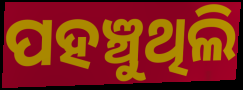
ପହଞ୍ଚୁଥିଲି